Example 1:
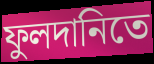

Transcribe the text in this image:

ফুলদানিতে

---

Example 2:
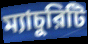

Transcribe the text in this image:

ম্যাচুরিটি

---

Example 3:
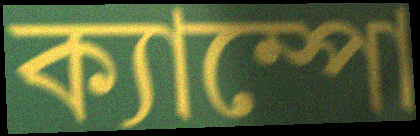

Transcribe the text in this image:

ক্যাম্পো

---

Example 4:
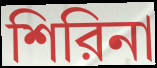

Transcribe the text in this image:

শিরিনা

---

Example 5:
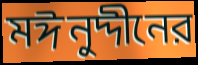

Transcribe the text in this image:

মঈনুদ্দীনের